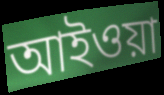
আইওয়া